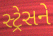
સ્ટ્રેસને